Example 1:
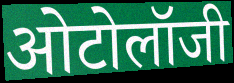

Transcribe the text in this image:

ओटोलॉजी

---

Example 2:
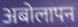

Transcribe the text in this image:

अबोलापन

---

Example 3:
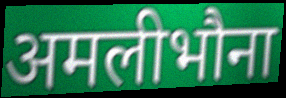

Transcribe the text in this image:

अमलीभौना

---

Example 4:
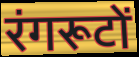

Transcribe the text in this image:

रंगरूटों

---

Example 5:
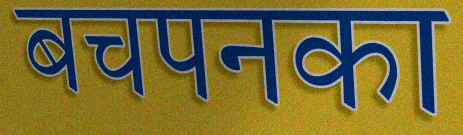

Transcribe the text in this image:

बचपनका